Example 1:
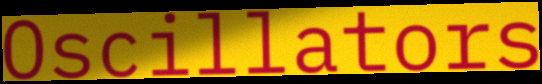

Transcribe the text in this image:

Oscillators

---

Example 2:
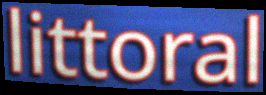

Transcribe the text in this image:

littoral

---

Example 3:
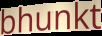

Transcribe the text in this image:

bhunkt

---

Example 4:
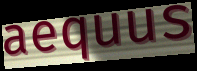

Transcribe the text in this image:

aequus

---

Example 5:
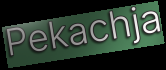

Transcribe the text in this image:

Pekachja